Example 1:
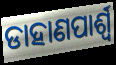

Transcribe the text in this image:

ଡାହାଣପାର୍ଶ୍ୱ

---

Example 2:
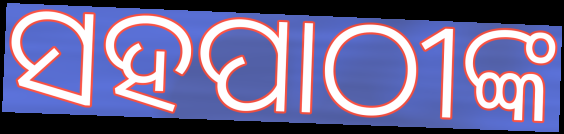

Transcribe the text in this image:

ସହପାଠୀଙ୍କ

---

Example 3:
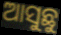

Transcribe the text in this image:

ଆସୁଛୁ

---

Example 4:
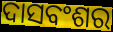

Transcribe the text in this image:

ଦାସବଂଶର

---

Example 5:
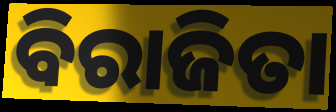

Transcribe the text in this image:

ବିରାଜିତା